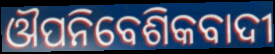
ଔପନିବେଶିକବାଦୀ